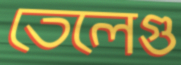
তেলেগু